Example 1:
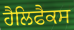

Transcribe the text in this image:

ਹੈਲਿਫੈਕਸ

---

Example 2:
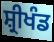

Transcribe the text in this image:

ਸ਼੍ਰੀਖੰਡ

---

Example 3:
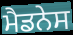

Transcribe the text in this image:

ਮੈਡਨੇਸ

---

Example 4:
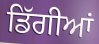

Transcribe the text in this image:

ਡਿੱਗੀਆਂ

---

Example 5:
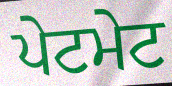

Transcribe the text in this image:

ਪੇਟਮੇਟ